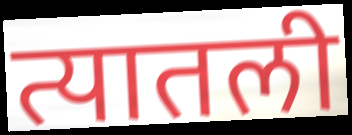
त्यातली